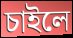
চাইলে